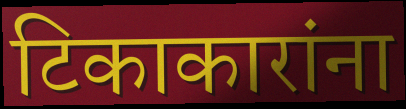
टिकाकारांना